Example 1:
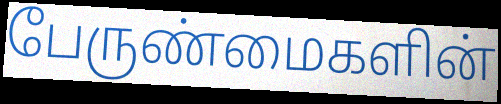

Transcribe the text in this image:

பேருண்மைகளின்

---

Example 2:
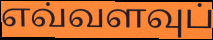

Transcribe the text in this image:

எவ்வளவுப்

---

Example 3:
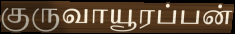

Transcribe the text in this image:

குருவாயூரப்பன்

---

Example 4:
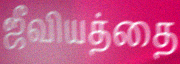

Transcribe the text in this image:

ஜீவியத்தை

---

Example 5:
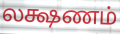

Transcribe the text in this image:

லக்ஷணம்